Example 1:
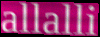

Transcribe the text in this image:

allalli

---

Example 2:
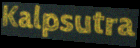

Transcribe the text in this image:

Kalpsutra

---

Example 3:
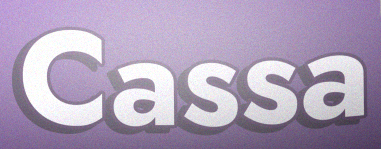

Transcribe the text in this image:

Cassa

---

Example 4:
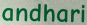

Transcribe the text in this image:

andhari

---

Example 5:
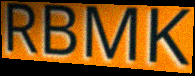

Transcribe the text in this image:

RBMK